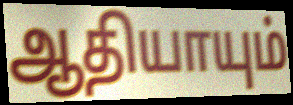
ஆதியாயும்